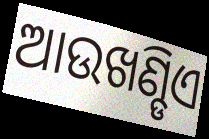
ଆଉଖଣ୍ଡିଏ